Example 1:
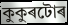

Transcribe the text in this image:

কুকুৰটোৰ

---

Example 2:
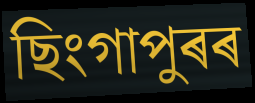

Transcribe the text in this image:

ছিংগাপুৰৰ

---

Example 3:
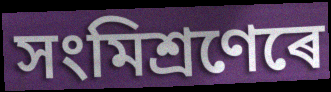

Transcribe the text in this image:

সংমিশ্ৰণেৰে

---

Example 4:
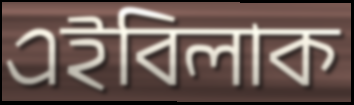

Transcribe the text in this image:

এইবিলাক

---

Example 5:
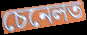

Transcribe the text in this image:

চেনেলত